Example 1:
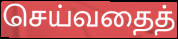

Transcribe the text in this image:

செய்வதைத்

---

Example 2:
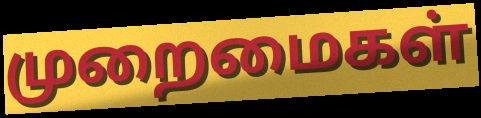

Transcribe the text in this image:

முறைமைகள்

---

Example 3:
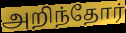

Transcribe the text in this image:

அறிந்தோர்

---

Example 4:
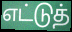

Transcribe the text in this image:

எட்டுத்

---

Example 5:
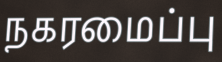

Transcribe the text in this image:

நகரமைப்பு